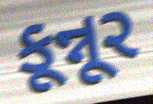
કૂન્નૂર